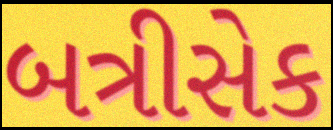
બત્રીસેક